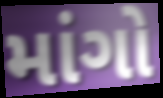
માંગો